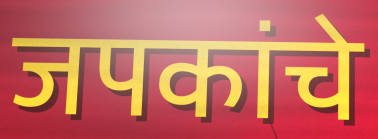
जपकांचे